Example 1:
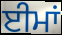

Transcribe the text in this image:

ਈਮਾਂ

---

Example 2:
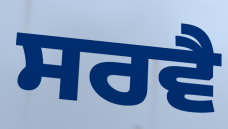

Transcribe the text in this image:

ਸਰਵੈ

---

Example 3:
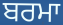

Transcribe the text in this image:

ਬਰਮਾ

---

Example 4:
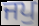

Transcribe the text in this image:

ਜਪੁ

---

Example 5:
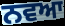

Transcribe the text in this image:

ਨਵਆ